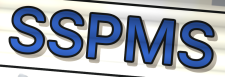
SSPMS